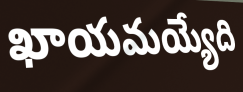
ఖాయమయ్యేది